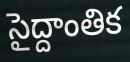
సైద్దాంతిక